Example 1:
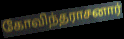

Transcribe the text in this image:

கோவிந்தராசனார்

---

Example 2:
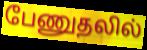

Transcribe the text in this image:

பேணுதலில்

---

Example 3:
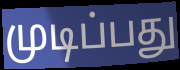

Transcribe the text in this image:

முடிப்பது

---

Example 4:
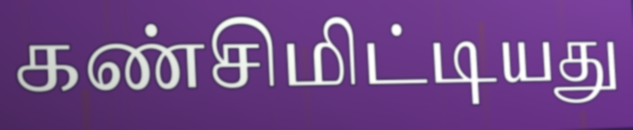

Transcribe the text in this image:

கண்சிமிட்டியது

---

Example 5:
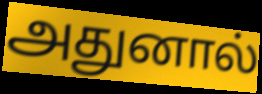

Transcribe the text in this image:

அதுனால்